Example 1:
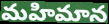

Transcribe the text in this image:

మహిమాన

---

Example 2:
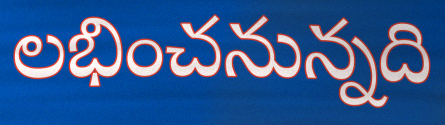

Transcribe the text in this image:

లభించనున్నది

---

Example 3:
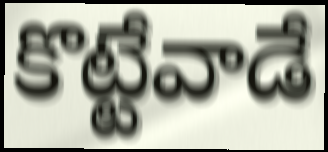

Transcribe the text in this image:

కొట్టేవాడే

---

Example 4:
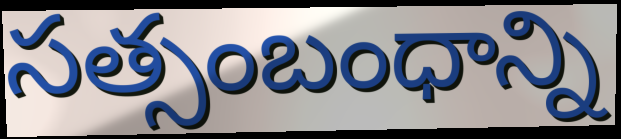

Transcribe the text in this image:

సత్సంబంధాన్ని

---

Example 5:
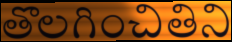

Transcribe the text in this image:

తొలగించితిని